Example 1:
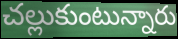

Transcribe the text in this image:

చల్లుకుంటున్నారు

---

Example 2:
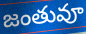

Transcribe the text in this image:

జంతువూ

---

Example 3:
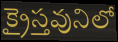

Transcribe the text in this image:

క్రైస్తవునిలో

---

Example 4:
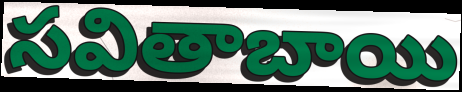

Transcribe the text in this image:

సవితాబాయి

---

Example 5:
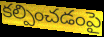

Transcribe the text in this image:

కల్పించడంపై